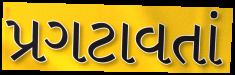
પ્રગટાવતાં